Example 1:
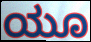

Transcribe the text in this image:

ಯೂ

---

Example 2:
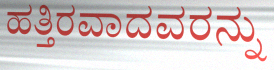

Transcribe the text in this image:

ಹತ್ತಿರವಾದವರನ್ನು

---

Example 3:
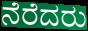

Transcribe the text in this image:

ನೆರೆದರು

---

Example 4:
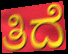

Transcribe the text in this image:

ತಿದೆ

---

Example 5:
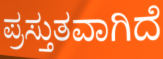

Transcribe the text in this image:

ಪ್ರಸ್ತುತವಾಗಿದೆ